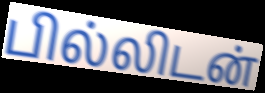
பில்லிடன்